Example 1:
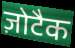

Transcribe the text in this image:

ज़ोटैक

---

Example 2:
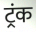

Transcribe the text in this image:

ट्रंक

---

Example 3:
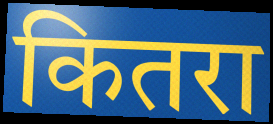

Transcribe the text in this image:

कितरा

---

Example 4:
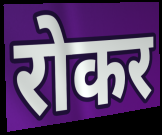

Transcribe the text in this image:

रोकर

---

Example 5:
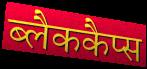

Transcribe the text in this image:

ब्लैककैप्स